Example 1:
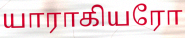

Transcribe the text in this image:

யாராகியரோ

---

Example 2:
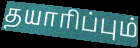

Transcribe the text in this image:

தயாரிப்பும்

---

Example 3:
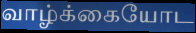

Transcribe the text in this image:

வாழ்க்கையோட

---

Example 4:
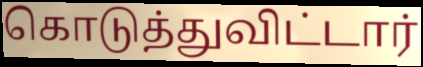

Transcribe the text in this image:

கொடுத்துவிட்டார்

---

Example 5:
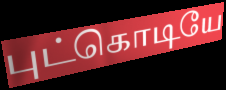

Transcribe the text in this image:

புட்கொடியே